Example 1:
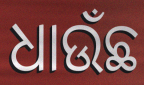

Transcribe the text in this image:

ଧାଉଁଛ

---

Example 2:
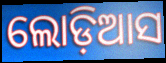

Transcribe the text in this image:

ଲୋଡ଼ିଆସ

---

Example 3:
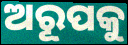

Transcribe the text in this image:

ଅରୂପକୁ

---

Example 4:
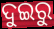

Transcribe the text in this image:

ଦୁଇରୁ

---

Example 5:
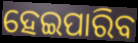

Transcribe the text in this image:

ହେଇପାରିବ